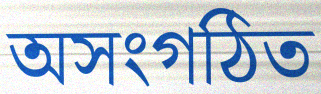
অসংগঠিত